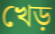
খেড়